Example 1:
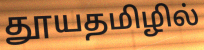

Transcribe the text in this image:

தூயதமிழில்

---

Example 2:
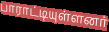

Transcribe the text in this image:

பாராட்டியுள்ளனர்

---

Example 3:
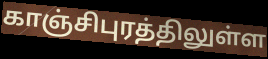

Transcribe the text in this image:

காஞ்சிபுரத்திலுள்ள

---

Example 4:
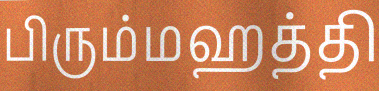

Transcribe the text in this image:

பிரும்மஹத்தி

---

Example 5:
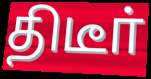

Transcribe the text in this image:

திடீர்